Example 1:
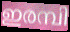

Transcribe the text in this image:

ഇരമ്പി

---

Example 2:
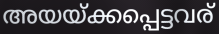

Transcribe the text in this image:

അയയ്ക്കപ്പെട്ടവര്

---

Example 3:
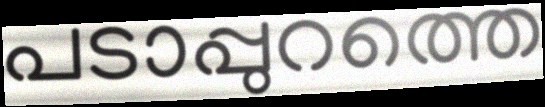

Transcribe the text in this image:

പടാപ്പുറത്തെ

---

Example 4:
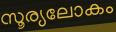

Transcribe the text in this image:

സൂര്യലോകം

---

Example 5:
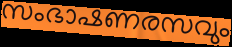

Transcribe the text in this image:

സംഭാഷണരസവും